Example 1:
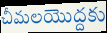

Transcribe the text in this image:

చీమలయొద్దకు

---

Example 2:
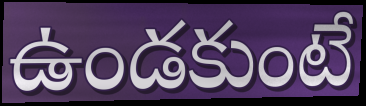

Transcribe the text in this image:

ఉండకుంటే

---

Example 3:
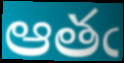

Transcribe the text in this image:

ఆతఁ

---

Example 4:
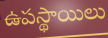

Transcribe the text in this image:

ఉపస్థాయిలు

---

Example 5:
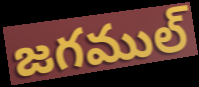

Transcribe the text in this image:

జగముల్